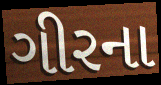
ગીરના